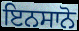
ਇਨਸਾਨੋ